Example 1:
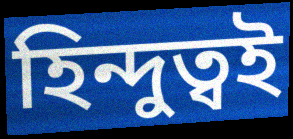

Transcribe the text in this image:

হিন্দুত্বই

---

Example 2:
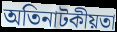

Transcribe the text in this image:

অতিনাটকীয়তা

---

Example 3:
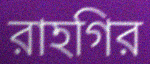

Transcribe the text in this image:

রাহগির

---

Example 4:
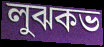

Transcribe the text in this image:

লুঝকভ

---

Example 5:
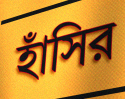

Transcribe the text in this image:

হাঁসির